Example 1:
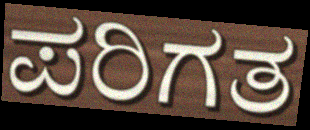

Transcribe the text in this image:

ಪರಿಗತ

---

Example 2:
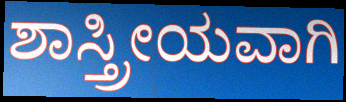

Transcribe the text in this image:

ಶಾಸ್ತ್ರೀಯವಾಗಿ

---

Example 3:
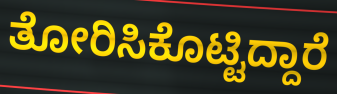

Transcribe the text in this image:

ತೋರಿಸಿಕೊಟ್ಟಿದ್ದಾರೆ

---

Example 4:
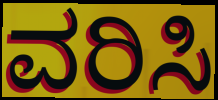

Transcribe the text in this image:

ವರಿಸಿ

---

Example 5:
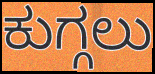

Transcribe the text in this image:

ಕುಗ್ಗಲು